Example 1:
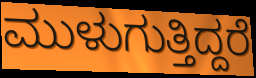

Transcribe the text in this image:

ಮುಳುಗುತ್ತಿದ್ದರೆ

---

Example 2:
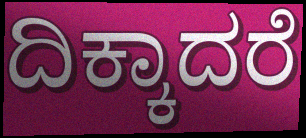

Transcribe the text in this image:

ದಿಕ್ಕಾದರೆ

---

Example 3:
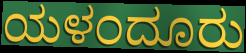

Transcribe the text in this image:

ಯಳಂದೂರು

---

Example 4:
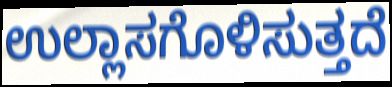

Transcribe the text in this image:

ಉಲ್ಲಾಸಗೊಳಿಸುತ್ತದೆ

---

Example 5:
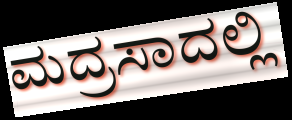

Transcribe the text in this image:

ಮದ್ರಸಾದಲ್ಲಿ